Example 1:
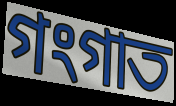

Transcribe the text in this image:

গংগাত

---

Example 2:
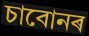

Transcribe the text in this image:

চাবোনৰ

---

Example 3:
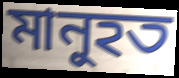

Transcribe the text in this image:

মানুহত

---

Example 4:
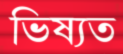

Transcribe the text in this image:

ভিষ্যত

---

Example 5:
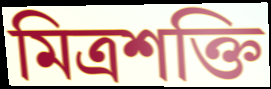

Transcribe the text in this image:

মিত্ৰশক্তি